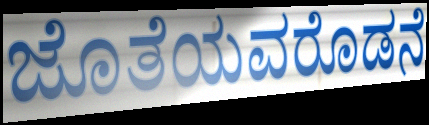
ಜೊತೆಯವರೊಡನೆ